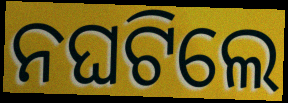
ନଘଟିଲେ